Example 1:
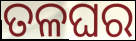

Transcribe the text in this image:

ତଳଘର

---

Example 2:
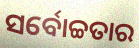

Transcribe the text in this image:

ସର୍ବୋଚ୍ଚତାର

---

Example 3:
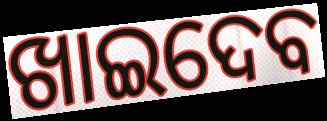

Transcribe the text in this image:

ଖାଇଦେବ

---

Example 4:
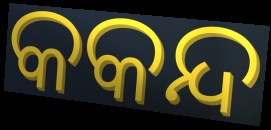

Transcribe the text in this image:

କକନ୍ଦ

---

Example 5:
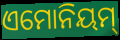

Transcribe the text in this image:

ଏମୋନିୟମ୍